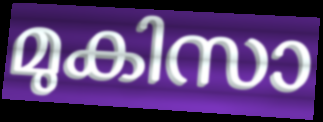
മുകിസാ